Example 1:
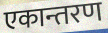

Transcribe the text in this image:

एकान्तरण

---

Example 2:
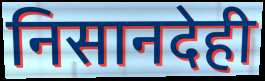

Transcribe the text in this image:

निसानदेही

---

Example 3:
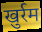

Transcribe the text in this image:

खुर्रम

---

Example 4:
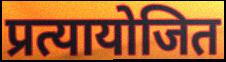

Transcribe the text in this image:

प्रत्यायोजित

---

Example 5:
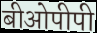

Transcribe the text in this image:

बीओपीपी